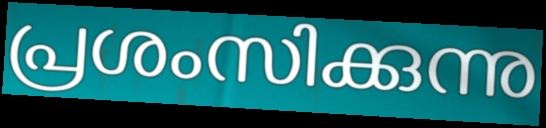
പ്രശംസിക്കുന്നു